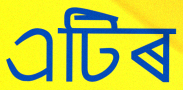
এটিৰ